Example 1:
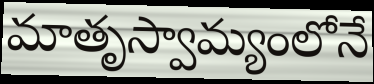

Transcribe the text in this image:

మాతృస్వామ్యంలోనే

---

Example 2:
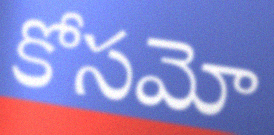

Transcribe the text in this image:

కోసమో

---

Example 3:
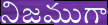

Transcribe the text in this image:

నిజముగా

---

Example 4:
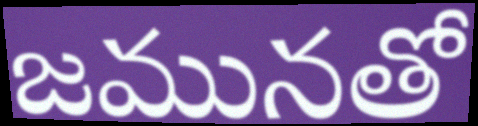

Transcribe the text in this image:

జమునతో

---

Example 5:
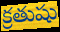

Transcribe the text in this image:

క్రతుషు